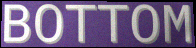
BOTTOM